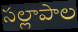
సల్లాపాల